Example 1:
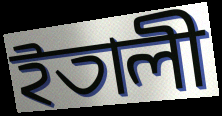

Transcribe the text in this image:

ইতালী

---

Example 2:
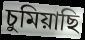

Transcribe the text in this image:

চুমিয়াছি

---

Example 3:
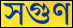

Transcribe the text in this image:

সগুণ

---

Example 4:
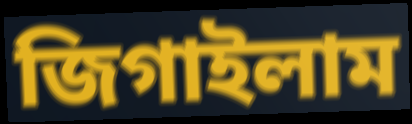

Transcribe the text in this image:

জিগাইলাম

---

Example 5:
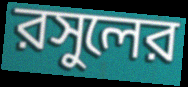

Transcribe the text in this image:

রসুলের